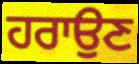
ਹਰਾਉਣ